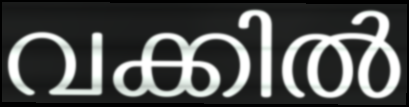
വക്കിൽ